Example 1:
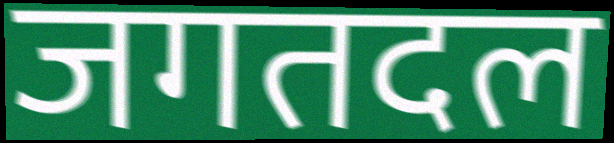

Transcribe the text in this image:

जगतदल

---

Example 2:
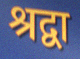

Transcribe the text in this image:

श्रद्वा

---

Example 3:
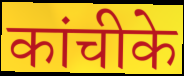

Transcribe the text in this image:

कांचीके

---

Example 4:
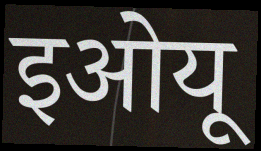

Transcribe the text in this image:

इओयू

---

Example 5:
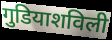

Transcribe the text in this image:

गुडियाशविली